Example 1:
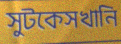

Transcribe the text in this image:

সুটকেসখানি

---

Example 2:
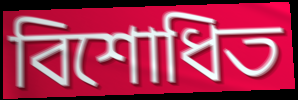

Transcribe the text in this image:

বিশোধিত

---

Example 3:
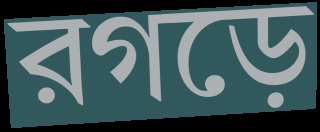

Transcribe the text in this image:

রগড়ে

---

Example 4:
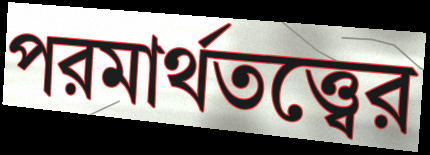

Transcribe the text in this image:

পরমার্থতত্ত্বের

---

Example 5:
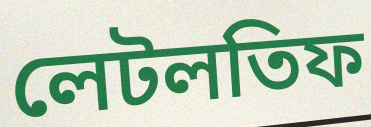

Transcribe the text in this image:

লেটলতিফ